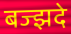
बज्झदे